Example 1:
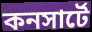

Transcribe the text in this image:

কনসার্টে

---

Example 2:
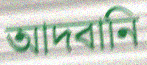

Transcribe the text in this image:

আদবানি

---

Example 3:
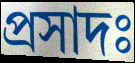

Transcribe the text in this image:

প্রসাদঃ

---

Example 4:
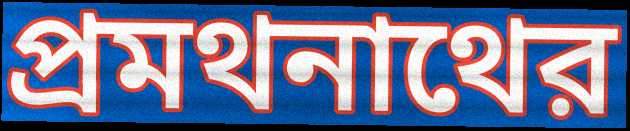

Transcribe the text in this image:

প্রমথনাথের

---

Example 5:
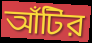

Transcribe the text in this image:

আঁটির